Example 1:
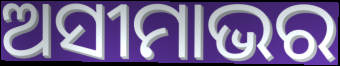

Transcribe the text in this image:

ଅସୀମାଭର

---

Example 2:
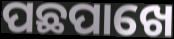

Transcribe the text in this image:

ପଛପାଖେ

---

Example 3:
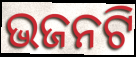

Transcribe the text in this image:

ଭଜନଟି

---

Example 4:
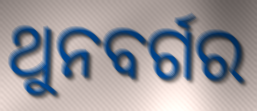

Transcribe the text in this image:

ଥୁନବର୍ଗର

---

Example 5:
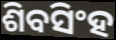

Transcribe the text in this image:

ଶିବସିଂହ